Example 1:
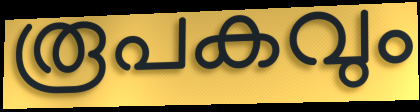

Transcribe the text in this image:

രൂപകവും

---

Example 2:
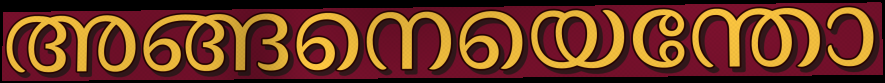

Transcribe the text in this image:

അങ്ങനെയെന്തോ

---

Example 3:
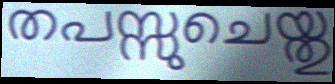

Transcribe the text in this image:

തപസ്സുചെയ്തു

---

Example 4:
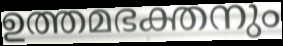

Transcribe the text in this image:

ഉത്തമഭക്തനും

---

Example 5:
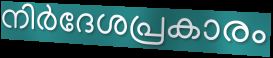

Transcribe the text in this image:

നിർദേശപ്രകാരം